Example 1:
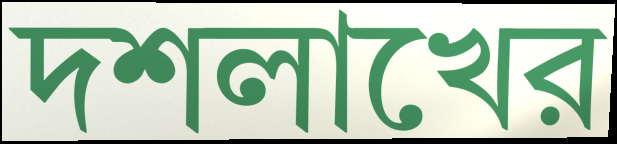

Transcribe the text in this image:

দশলাখের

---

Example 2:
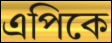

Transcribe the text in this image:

এপিকে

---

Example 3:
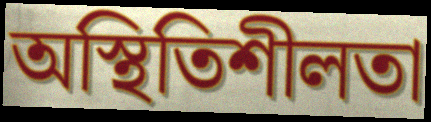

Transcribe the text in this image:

অস্থিতিশীলতা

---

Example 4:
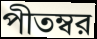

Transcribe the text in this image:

পীতম্বর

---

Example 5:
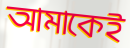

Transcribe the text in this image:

আমাকেই